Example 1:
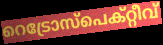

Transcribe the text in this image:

റെട്രോസ്പെക്റ്റീവ്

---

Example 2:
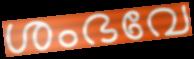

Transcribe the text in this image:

ശംഭവേ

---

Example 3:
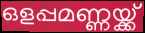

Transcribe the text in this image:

ഒളപ്പമണ്ണയ്ക്ക്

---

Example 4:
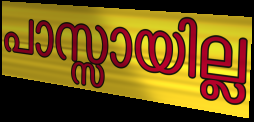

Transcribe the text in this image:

പാസ്സായില്ല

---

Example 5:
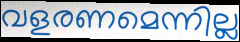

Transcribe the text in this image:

വളരണമെന്നില്ല